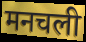
मनचली